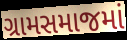
ગ્રામસમાજમાં